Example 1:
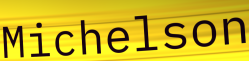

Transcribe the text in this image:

Michelson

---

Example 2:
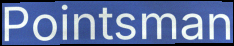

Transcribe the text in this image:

Pointsman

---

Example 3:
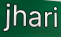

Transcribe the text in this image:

jhari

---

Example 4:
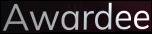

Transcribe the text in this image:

Awardee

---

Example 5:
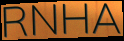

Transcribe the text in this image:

RNHA